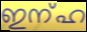
ഇന്ഹ